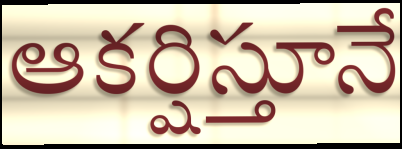
ఆకర్షిస్తూనే